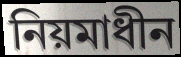
নিয়মাধীন